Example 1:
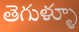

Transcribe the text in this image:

తెగుళ్ళూ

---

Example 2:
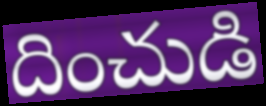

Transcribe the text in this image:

దించుడి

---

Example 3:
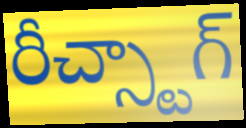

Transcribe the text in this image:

రీచ్స్టాగ్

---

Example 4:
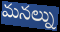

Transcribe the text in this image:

మనల్ను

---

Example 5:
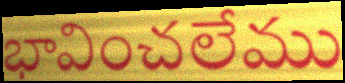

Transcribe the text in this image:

భావించలేము